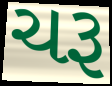
ચરૂ